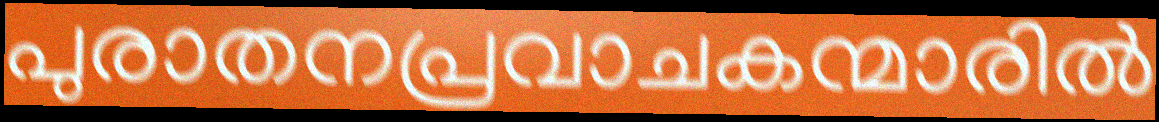
പുരാതനപ്രവാചകന്മാരിൽ